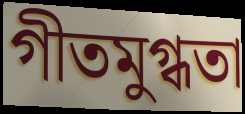
গীতমুগ্ধতা